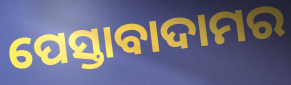
ପେସ୍ତାବାଦାମର